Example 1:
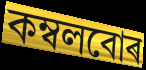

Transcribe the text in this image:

কম্বলবোৰ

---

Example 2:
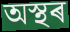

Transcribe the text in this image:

অস্থৰ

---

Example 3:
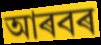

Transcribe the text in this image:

আৰবৰ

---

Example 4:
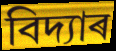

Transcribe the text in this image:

বিদ্য়াৰ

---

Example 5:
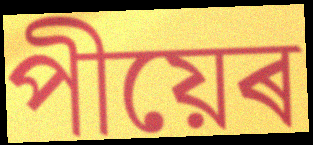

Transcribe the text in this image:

পীয়েৰ